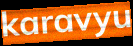
karavyu